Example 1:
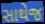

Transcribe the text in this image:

સાથેજ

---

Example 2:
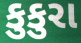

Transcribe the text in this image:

કુકુરા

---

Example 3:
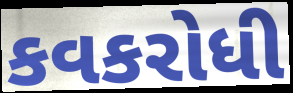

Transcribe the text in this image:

કવકરોધી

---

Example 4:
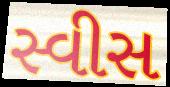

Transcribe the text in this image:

સ્વીસ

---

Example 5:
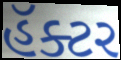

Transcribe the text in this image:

હૅક્ટર